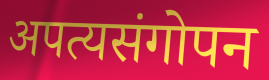
अपत्यसंगोपन